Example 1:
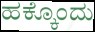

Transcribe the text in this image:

ಹಕ್ಕೊಂದು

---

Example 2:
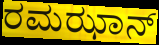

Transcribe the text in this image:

ರಮಝಾನ್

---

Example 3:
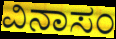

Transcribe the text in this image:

ವಿನಾಸಂ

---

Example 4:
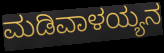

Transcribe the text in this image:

ಮಡಿವಾಳಯ್ಯನ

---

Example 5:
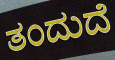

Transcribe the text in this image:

ತಂದುದೆ